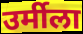
उर्मीला